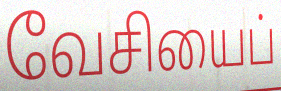
வேசியைப்